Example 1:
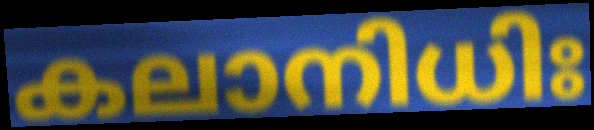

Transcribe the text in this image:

കലാനിധിഃ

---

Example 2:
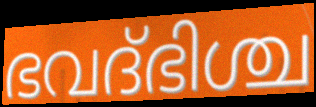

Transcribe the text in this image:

ഭവദ്ഭിശ്ച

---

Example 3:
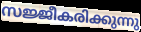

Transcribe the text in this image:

സജ്ജീകരിക്കുന്നു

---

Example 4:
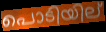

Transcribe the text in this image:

പൊടിയില്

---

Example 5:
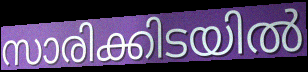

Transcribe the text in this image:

സാരിക്കിടയിൽ